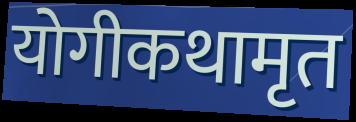
योगीकथामृत